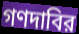
গণদাবির